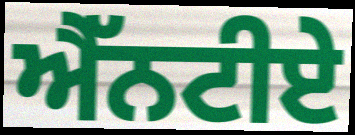
ਐੱਨਟੀਏ